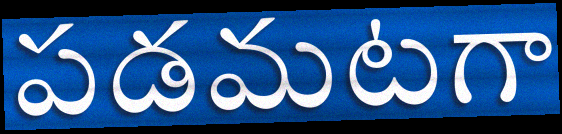
పడమటగా